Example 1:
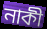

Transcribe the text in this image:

নাকী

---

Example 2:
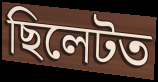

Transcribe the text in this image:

ছিলেটত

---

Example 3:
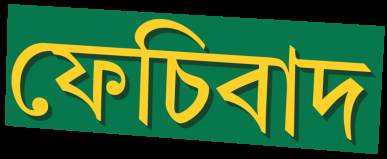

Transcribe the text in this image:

ফেচিবাদ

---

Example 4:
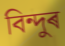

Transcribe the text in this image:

বিন্দুৰ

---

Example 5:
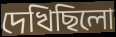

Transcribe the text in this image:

দেখিছিলো